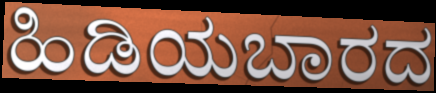
ಹಿಡಿಯಬಾರದ